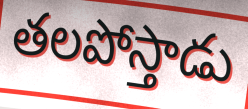
తలపోస్తాడు